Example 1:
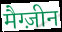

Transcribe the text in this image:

मैग्ज़ीन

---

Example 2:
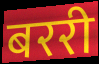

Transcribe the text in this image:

बररी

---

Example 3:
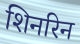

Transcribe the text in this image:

शिनरिन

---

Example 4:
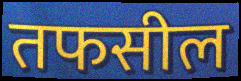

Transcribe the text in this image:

तफसील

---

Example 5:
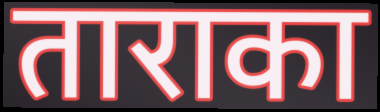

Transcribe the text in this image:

ताराका